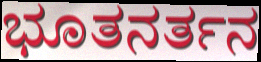
ಭೂತನರ್ತನ